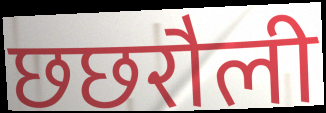
छछरौली